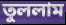
তুললাম